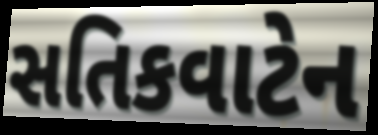
સતિકવાટેન